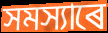
সমস্যাৰে